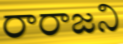
రారాజని